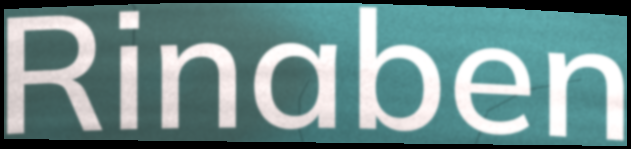
Rinaben